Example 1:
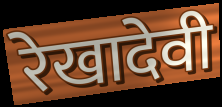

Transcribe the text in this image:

रेखादेवी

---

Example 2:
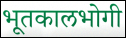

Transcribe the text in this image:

भूतकालभोगी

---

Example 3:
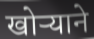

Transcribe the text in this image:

खोऱ्याने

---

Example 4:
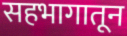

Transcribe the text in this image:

सहभागातून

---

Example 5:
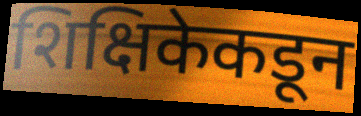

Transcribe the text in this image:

शिक्षिकेकडून